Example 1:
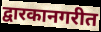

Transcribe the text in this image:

द्वारकानगरीत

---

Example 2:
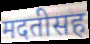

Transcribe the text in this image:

मदतीसह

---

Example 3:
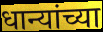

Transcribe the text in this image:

धान्यांच्या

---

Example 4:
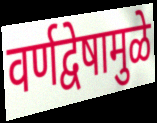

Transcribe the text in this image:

वर्णद्वेषामुळे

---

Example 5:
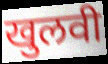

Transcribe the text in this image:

खुलवी